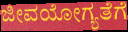
ಜೀವಯೋಗ್ಯತೆಗೆ